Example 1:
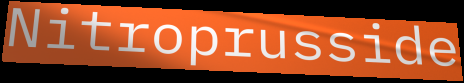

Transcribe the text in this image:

Nitroprusside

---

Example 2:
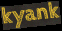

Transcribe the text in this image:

kyank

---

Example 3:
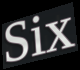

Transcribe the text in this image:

Six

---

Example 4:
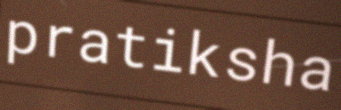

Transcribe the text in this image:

pratiksha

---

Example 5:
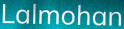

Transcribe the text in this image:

Lalmohan